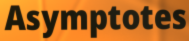
Asymptotes